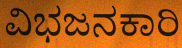
ವಿಭಜನಕಾರಿ